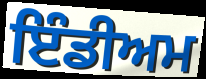
ਇੰਡੀਅਮ